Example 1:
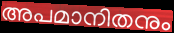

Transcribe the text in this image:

അപമാനിതനും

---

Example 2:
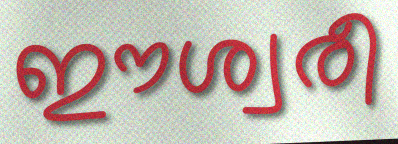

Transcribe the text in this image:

ഈശ്വരീ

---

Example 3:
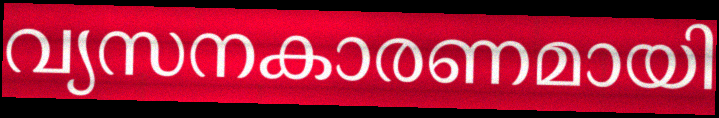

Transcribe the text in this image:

വ്യസനകാരണമായി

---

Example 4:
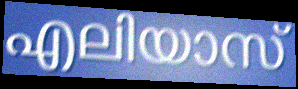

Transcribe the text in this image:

എലിയാസ്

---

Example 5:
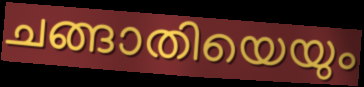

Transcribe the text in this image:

ചങ്ങാതിയെയും